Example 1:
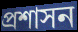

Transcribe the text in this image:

প্ৰশাসন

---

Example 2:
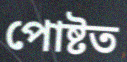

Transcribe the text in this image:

পোষ্টত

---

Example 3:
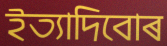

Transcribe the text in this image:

ইত্যাদিবোৰ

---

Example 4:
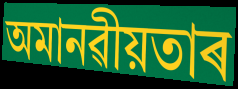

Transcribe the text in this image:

অমানৱীয়তাৰ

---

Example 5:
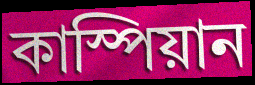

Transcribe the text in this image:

কাস্পিয়ান